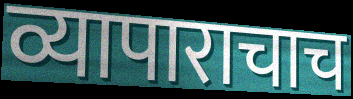
व्यापाराचाच